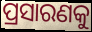
ପ୍ରସାରଣକୁ